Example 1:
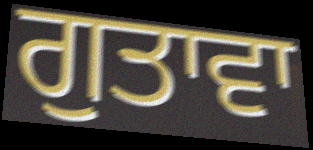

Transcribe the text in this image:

ਗੁਤਾਵਾ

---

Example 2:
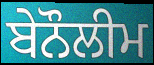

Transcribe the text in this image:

ਬੇਨੌਲੀਮ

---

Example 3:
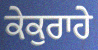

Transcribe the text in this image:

ਕੇਕੁਰਾਹੇ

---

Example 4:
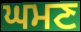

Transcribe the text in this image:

ਘਮਣ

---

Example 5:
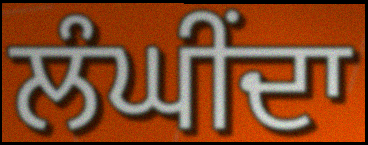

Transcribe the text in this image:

ਲੰਘੀਂਦਾ